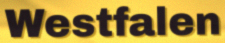
Westfalen